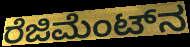
ರೆಜಿಮೆಂಟ್‌ನ